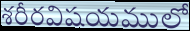
శరీరవిషయములో